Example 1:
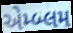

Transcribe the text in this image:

એમ્બ્લમ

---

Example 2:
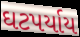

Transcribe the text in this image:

ઘટપર્યાય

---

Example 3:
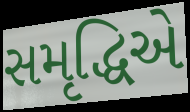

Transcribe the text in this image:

સમૃદ્ધિએ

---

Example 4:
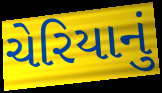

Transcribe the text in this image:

ચેરિયાનું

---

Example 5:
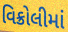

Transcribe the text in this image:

વિક્રોલીમાં